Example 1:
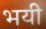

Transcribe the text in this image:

भयी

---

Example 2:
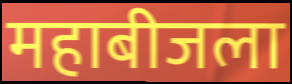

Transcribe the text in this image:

महाबीजला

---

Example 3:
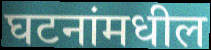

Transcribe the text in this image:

घटनांमधील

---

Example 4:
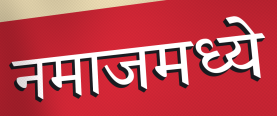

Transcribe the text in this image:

नमाजमध्ये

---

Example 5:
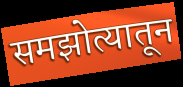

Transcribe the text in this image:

समझोत्यातून